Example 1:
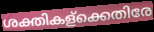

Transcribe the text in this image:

ശക്തികള്ക്കെതിരേ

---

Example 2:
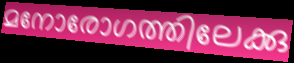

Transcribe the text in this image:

മനോരോഗത്തിലേക്കു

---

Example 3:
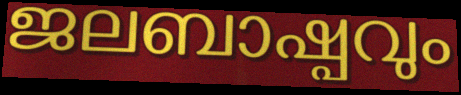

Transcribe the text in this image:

ജലബാഷ്പവും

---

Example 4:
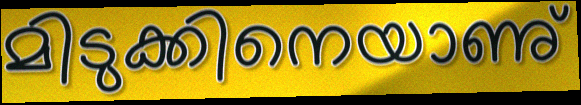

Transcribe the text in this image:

മിടുക്കിനെയാണു്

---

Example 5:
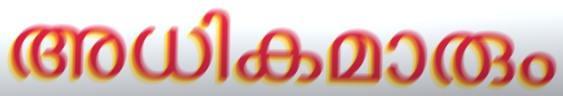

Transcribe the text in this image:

അധികമാരും